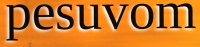
pesuvom